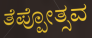
ತೆಪ್ಪೋತ್ಸವ